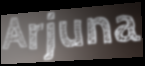
Arjuna